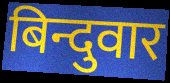
बिन्‍दुवार